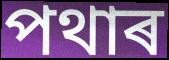
পথাৰ